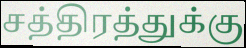
சத்திரத்துக்கு